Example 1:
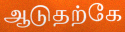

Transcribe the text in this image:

ஆடுதற்கே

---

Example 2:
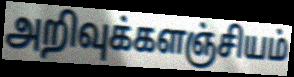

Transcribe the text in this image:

அறிவுக்களஞ்சியம்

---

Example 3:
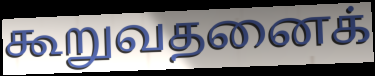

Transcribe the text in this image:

கூறுவதனைக்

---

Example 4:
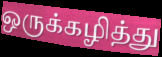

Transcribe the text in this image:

ஒருக்கழித்து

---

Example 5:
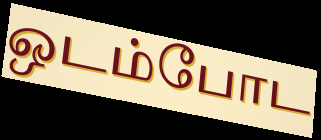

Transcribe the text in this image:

ஒடம்போட